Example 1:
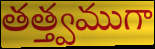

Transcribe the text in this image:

తత్త్వముగా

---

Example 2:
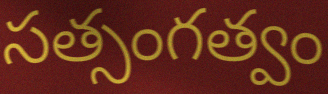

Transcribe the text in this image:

సత్సంగత్వం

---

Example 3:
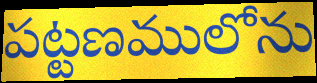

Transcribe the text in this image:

పట్టణములోను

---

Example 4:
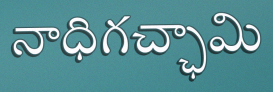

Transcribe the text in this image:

నాధిగచ్ఛామి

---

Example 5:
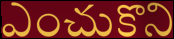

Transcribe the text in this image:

ఎంచుకొని